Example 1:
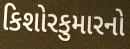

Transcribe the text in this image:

કિશોરકુમારનો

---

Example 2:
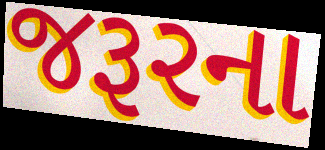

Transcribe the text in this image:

જરૂરના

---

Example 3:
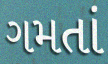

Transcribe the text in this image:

ગમતાં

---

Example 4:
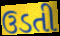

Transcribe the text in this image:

ઉડતી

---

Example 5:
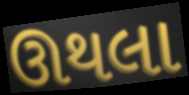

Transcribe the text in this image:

ઊથલા